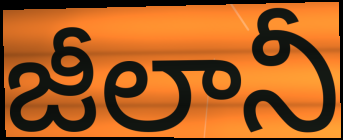
జీలానీ